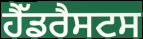
ਹੈੱਡਰੈਸਟਸ